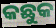
କଛୁକ